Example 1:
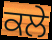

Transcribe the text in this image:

ਕਲੇ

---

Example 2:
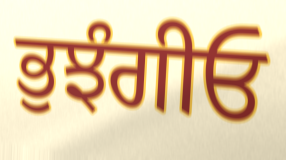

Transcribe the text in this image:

ਭੁਝੰਗੀਓ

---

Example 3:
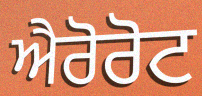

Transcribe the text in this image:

ਐਰੋਰੋਟ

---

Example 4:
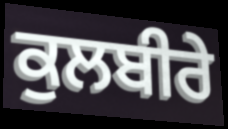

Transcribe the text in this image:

ਕੁਲਬੀਰੇ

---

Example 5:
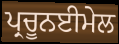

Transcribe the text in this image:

ਪ੍ਰਚੂਨਈਮੇਲ